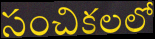
సంచికలలో